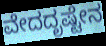
ವೇದದೃಷ್ಟೇನ